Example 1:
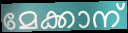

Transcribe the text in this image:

മേക്കാന്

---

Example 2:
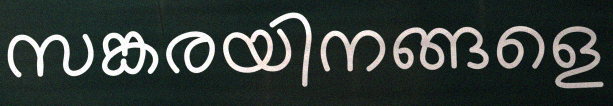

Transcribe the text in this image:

സങ്കരയിനങ്ങളെ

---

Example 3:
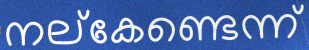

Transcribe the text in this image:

നല്കേണ്ടെന്ന്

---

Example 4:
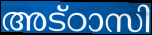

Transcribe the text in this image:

അട്ഠാസി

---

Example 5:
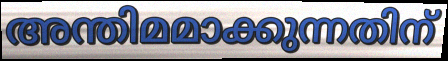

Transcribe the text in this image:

അന്തിമമാക്കുന്നതിന്